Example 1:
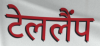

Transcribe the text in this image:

टेललैंप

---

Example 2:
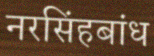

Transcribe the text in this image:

नरसिंहबांध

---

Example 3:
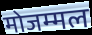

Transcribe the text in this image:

मोजम्मल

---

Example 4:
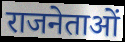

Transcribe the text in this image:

राजनेताओं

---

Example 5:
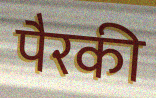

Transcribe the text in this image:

पैरकी